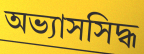
অভ্যাসসিদ্ধ